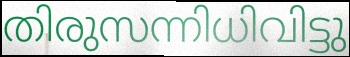
തിരുസന്നിധിവിട്ടു